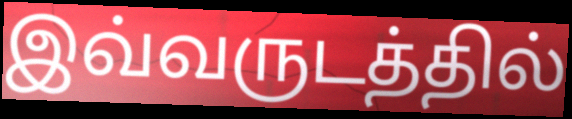
இவ்வருடத்தில்